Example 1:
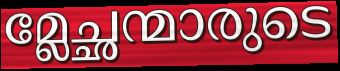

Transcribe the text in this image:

മ്ലേച്ഛന്മാരുടെ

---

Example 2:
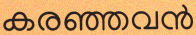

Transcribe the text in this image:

കരഞ്ഞവൻ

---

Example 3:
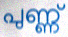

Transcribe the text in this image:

പുണ്ണ്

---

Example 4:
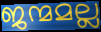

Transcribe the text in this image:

ജന്മമല്ല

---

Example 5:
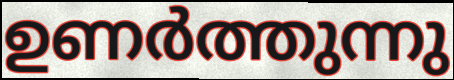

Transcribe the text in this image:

ഉണർത്തുന്നു